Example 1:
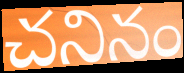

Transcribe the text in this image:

చనినం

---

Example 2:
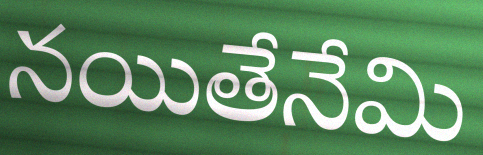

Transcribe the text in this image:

నయితేనేమి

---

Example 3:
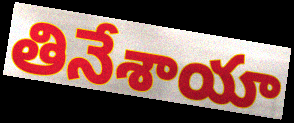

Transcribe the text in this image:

తినేశాయా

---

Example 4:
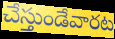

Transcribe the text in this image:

చేస్తుండేవారట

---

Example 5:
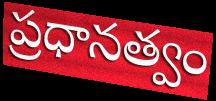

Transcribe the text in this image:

ప్రధానత్వం